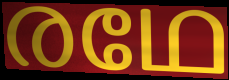
രഥേ